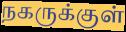
நகருக்குள்